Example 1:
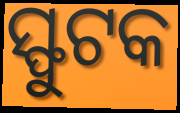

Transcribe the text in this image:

ସ୍ଫୁଟକ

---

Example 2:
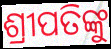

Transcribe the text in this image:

ଶ୍ରୀପତିଙ୍କୁ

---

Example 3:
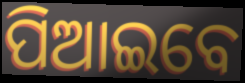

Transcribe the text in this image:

ପିଆଇବେ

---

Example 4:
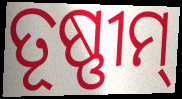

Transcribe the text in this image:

ତୂଷ୍ଣୀମ୍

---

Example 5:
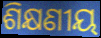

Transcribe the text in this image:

ଶିକ୍ଷଣୀୟ